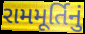
રામમૂર્તિનું